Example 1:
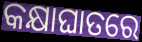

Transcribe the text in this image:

କକ୍ଷାଘାତରେ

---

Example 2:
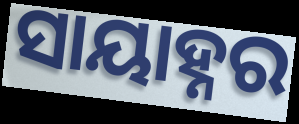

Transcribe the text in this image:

ସାୟାହ୍ନର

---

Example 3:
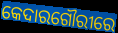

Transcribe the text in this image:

କେଦାରଗୌରୀରେ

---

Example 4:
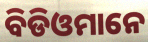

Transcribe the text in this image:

ବିଡିଓମାନେ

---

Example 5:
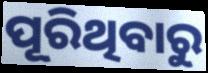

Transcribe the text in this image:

ପୂରିଥିବାରୁ